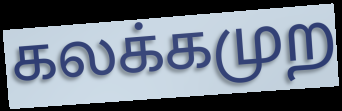
கலக்கமுற